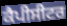
ਕੈਪੀਸੀਟਰ